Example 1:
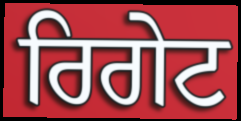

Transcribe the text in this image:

ਰਿਗੇਟ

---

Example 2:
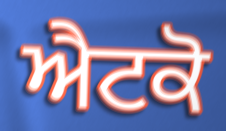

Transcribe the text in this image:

ਐਟਕੋ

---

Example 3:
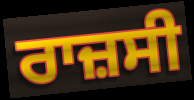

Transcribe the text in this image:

ਰਾਜ਼ਸੀ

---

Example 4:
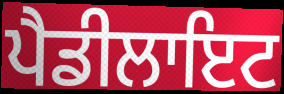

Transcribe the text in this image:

ਪੈਡੀਲਾਇਟ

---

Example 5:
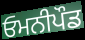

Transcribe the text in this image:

ਓਮਨੀਪੌਡ